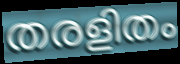
തരളിതം